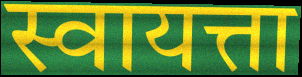
स्वायत्ता